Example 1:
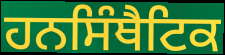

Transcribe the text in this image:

ਹਨਸਿੰਥੈਟਿਕ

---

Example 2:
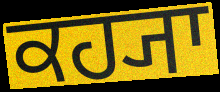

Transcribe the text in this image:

ਕਹ੍ਯਾ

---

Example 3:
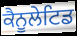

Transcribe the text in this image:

ਕੈਨੂਲੇਟਿਡ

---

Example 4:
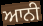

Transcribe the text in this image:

ਆਨੀ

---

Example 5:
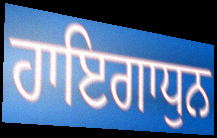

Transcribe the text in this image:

ਹਾਇਗਾਧੁਨ